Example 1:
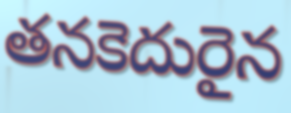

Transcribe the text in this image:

తనకెదురైన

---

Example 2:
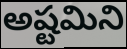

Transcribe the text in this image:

అష్టమిని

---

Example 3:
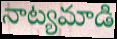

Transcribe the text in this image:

నాట్యమాడి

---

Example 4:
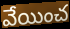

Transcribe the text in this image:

వేయించ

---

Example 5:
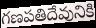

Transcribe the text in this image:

గణపతిదేవునికి